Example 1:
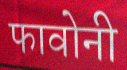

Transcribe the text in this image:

फावोनी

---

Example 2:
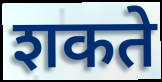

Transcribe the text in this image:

शकते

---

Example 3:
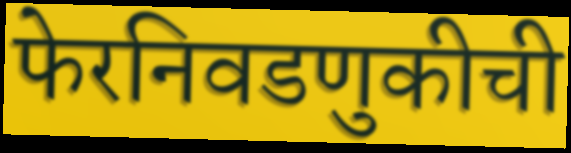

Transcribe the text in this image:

फेरनिवडणुकीची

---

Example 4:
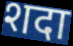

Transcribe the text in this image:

शदा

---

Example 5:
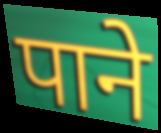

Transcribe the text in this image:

पाने